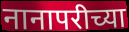
नानापरीच्या